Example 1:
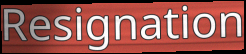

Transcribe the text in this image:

Resignation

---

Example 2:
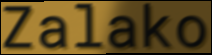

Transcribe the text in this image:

Zalako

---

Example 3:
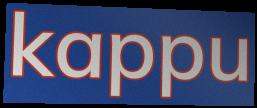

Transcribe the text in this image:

kappu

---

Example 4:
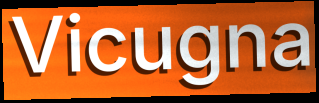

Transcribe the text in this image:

Vicugna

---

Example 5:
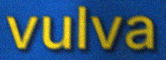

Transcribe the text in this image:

vulva